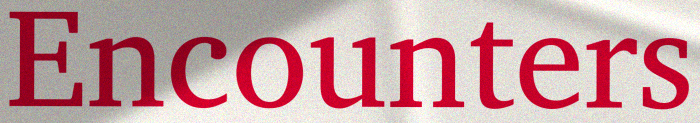
Encounters